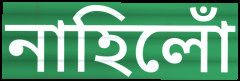
নাহিলোঁ